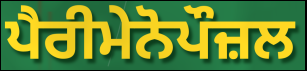
ਪੈਰੀਮੇਨੋਪੌਜ਼ਲ